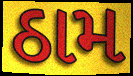
ઠામ